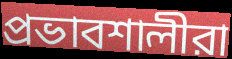
প্রভাবশালীরা